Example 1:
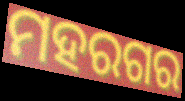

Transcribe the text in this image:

ମହରଗର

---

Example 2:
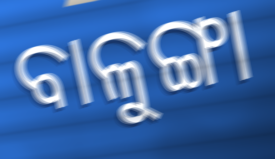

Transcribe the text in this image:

ବାଳୁଙ୍ଗା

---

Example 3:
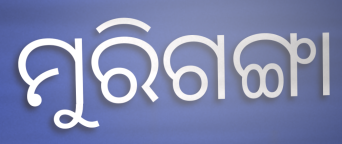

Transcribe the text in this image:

ମୁରିଗଙ୍ଗା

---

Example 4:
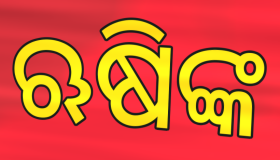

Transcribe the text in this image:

ଋଷିଙ୍କ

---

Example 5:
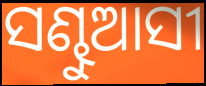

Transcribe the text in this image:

ସଣ୍ଢୁଆସୀ